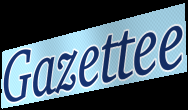
Gazettee